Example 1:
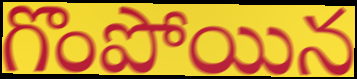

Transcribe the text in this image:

గొంపోయిన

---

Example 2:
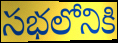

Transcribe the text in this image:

సభలోనికి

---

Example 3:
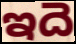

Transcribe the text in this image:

ఇదె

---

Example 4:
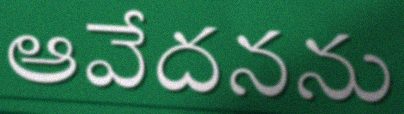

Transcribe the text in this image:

ఆవేదనను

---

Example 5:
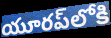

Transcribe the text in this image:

యూరప్‌లోకి